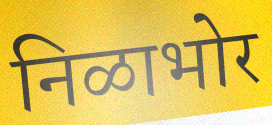
निळाभोर